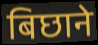
बिछाने